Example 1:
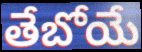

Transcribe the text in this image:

తేబోయే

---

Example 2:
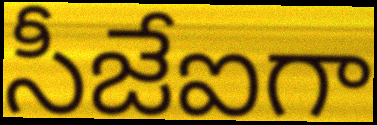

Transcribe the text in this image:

సీజేఐగా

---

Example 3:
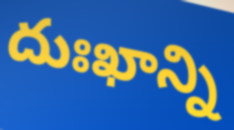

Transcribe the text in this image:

దుఃఖాన్ని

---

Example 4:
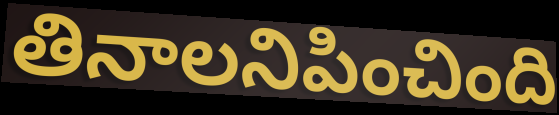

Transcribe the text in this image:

తినాలనిపించింది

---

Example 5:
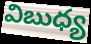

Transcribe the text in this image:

విబుధ్య